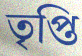
তৃপ্তি